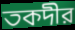
তকদীর